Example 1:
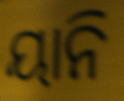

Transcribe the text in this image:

ୟାନି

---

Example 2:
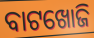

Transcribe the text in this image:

ବାଟଖୋଜି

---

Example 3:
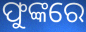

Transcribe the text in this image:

ଫୁଙ୍କରେ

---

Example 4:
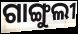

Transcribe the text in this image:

ଗାଙ୍ଗୁଲୀ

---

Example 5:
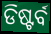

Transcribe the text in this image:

ଡିଷ୍ଟର୍ବ